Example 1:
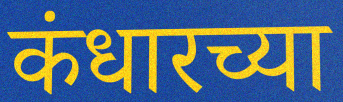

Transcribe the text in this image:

कंधारच्या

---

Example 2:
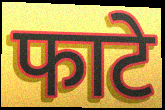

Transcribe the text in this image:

फाटे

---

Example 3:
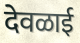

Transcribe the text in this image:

देवळाई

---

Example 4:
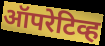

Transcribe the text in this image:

ऑपरेटिव्ह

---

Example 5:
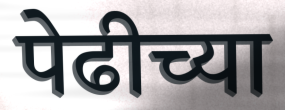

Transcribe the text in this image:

पेढीच्या